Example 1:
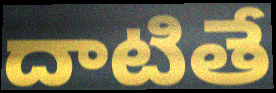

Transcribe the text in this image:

దాటితే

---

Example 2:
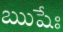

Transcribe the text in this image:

ఋషేః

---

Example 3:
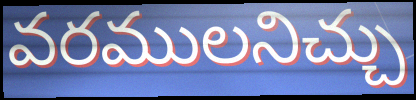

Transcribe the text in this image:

వరములనిచ్చు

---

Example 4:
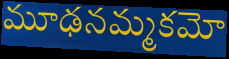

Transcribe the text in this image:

మూఢనమ్మకమో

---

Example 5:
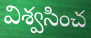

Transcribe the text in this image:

విశ్వసించ